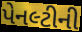
પેનલ્ટીની